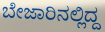
ಬೇಜಾರಿನಲ್ಲಿದ್ದ